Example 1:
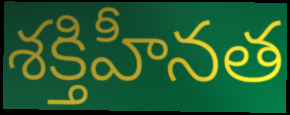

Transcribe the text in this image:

శక్తిహీనత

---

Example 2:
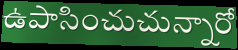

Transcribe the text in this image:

ఉపాసించుచున్నారో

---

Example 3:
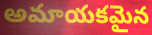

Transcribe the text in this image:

అమాయకమైన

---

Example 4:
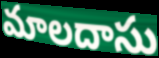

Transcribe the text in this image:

మాలదాసు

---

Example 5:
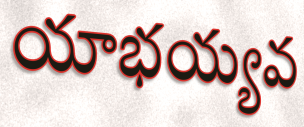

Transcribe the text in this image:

యాభయ్యవ